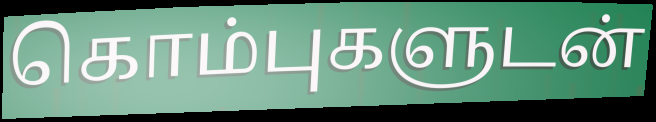
கொம்புகளுடன்